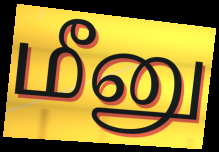
மீனு